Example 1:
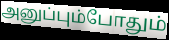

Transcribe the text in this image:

அனுப்பும்போதும்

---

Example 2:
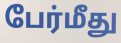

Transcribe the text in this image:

பேர்மீது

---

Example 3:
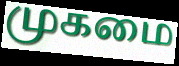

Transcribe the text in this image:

முகமை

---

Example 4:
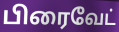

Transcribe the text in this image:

பிரைவேட்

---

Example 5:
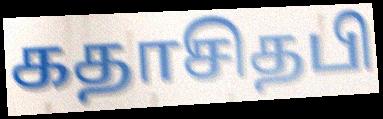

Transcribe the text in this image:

கதாசிதபி